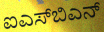
ಐಎಸ್‌ಬಿಎನ್